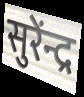
सुरेंन्द्र